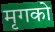
मृगको